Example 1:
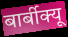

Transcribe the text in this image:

बार्बीक्यू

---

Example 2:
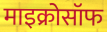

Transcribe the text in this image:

माइक्रोसॉफ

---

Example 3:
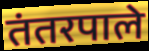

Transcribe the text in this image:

तंतरपाले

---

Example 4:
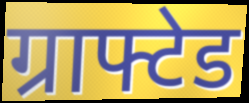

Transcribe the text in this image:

ग्राफ्टेड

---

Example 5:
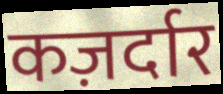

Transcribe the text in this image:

कज़र्दार